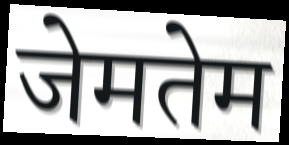
जेमतेम